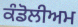
ਕੰਡੋਲੀਅਮ